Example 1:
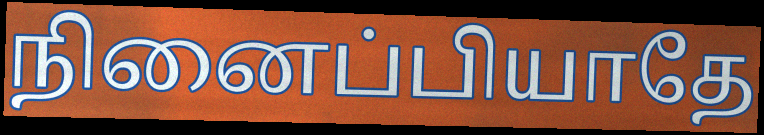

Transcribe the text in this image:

நினைப்பியாதே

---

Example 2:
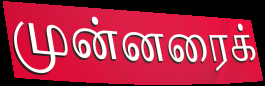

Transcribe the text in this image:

முன்னரைக்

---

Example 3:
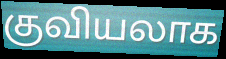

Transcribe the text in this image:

குவியலாக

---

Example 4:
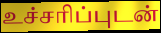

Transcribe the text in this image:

உச்சரிப்புடன்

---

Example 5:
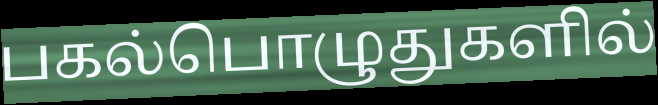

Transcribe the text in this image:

பகல்பொழுதுகளில்